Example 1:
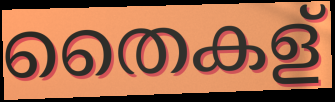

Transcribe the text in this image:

തൈകള്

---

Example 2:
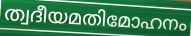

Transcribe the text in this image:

ത്വദീയമതിമോഹനം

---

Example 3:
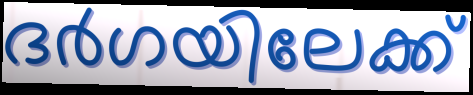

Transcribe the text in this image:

ദർഗയിലേക്ക്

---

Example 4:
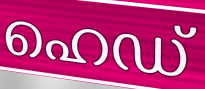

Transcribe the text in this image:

ഹെഡ്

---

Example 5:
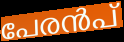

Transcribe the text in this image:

പേരൻപ്